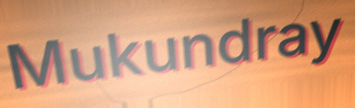
Mukundray